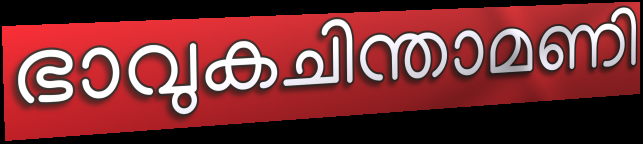
ഭാവുകചിന്താമണി